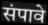
संपावे